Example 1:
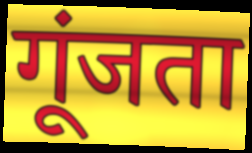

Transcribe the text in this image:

गूंजता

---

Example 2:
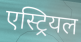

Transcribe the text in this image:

एस्ट्रियल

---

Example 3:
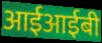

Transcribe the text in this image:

आईआईबी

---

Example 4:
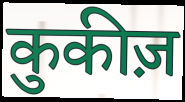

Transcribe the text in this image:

कुकीज़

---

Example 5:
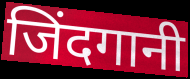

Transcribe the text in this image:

जिंदगानी